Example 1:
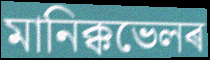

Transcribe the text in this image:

মানিক্কভেলৰ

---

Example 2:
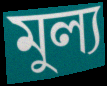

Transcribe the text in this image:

মুল্য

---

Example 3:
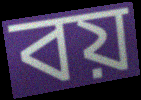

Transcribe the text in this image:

বয়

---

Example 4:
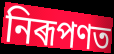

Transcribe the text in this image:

নিৰূপণত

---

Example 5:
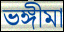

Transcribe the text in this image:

ভঙ্গীমা